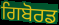
ਗਿਬੋਰਡ